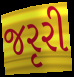
જરૃરી